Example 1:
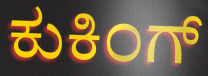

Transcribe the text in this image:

ಕುಕಿಂಗ್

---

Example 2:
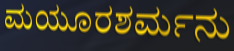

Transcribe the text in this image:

ಮಯೂರಶರ್ಮನು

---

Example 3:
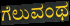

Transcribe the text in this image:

ಗೆಲುವಂಥ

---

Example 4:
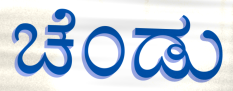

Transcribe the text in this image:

ಚೆಂಡು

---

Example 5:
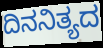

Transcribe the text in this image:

ದಿನನಿತ್ಯದ